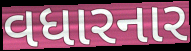
વધારનાર